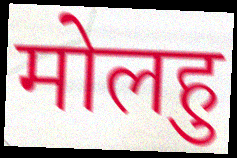
मोलहु